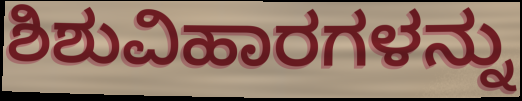
ಶಿಶುವಿಹಾರಗಳನ್ನು